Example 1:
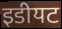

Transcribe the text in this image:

इडीयट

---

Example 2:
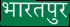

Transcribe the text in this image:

भारतपुर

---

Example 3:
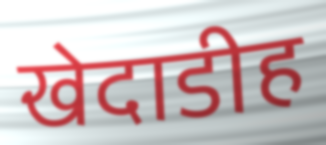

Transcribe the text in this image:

खेदाडीह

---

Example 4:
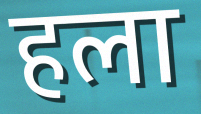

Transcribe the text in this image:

हला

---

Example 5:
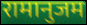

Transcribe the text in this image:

रामानुजम